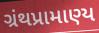
ગ્રંથપ્રામાણ્ય